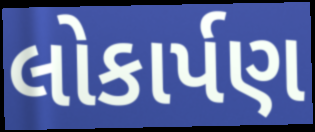
લોકાર્પણ